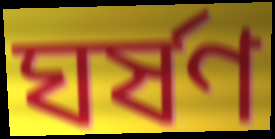
ঘর্ষণ